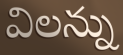
విలన్ను